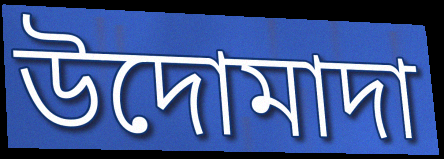
উদোমাদা